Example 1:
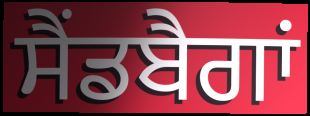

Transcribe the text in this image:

ਸੈਂਡਬੈਗਾਂ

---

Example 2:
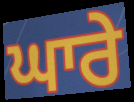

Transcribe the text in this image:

ਘਾਰੇ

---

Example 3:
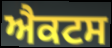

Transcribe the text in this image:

ਐਕਟਸ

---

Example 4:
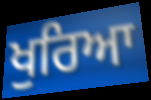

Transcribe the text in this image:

ਖੁਰਿਆ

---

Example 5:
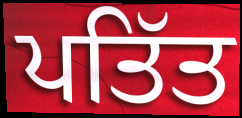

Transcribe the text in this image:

ਪਤਿੱਤ